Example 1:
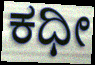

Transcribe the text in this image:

ಕಧೀ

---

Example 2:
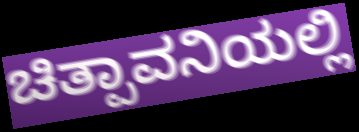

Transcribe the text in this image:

ಚಿತ್ಪಾವನಿಯಲ್ಲಿ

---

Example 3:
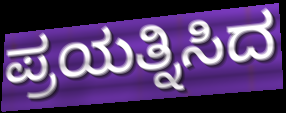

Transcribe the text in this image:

ಪ್ರಯತ್ನಿಸಿದ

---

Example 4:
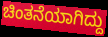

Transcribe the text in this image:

ಚಿಂತನೆಯಾಗಿದ್ದು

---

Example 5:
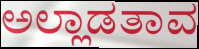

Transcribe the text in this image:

ಅಲ್ಲಾಡತಾವ